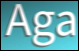
Aga